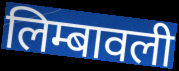
लिम्बावली